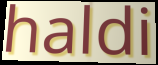
haldi